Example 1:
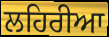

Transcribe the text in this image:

ਲਹਿਰੀਆ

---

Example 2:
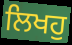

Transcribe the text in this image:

ਲਿਖਹੁ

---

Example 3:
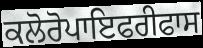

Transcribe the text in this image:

ਕਲੋਰੋਪਾਇਫਰੀਫਾਸ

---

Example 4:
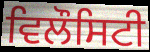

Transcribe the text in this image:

ਵਿਲੌਸਿਟੀ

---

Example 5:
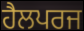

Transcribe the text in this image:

ਹੈਲਪਰਜ